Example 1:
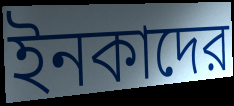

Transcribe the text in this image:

ইনকাদের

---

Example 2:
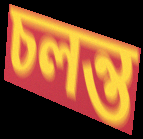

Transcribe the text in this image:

চলন্ত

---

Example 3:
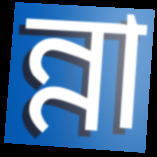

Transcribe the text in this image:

ন্না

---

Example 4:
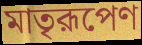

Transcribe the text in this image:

মাতৃরূপেণ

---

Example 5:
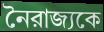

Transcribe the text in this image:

নৈরাজ্যকে